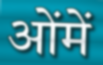
ओंमें